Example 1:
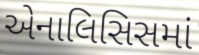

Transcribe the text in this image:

એનાલિસિસમાં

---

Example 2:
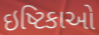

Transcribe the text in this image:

ઇષ્ટિકાઓ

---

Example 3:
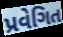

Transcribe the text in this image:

પ્રવેગિત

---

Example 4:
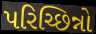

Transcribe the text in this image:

પરિચ્છિન્નો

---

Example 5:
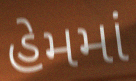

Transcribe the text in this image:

હેમમાં